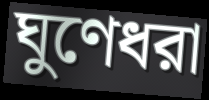
ঘুণেধরা